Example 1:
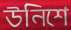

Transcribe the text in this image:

উনিশে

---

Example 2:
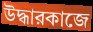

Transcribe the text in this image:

উদ্ধারকাজে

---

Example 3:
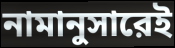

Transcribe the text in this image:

নামানুসারেই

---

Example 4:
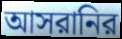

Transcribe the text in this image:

আসরানির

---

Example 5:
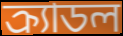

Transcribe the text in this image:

ক্র্যাডল